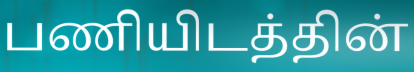
பணியிடத்தின்